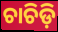
ଚାଚିଡ଼ି